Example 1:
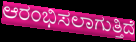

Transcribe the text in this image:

ಆರಂಭಿಸಲಾಗುತ್ತಿದೆ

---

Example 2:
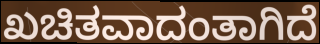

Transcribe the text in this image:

ಖಚಿತವಾದಂತಾಗಿದೆ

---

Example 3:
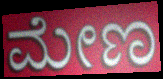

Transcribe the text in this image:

ಮೇಣ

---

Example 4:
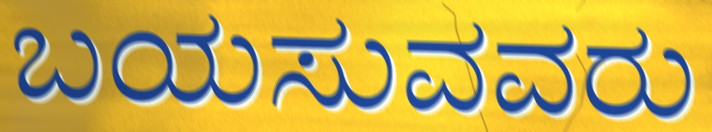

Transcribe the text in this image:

ಬಯಸುವವರು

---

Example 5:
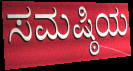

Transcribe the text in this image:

ಸಮಷ್ಠಿಯ